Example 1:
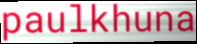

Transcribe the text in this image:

paulkhuna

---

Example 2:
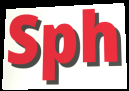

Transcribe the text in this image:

Sph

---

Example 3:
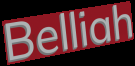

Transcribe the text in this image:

Belliah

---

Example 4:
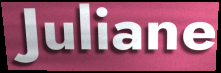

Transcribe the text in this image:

Juliane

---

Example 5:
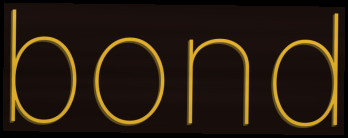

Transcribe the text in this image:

bond